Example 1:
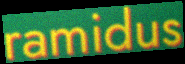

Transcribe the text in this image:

ramidus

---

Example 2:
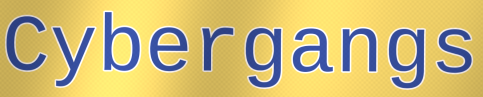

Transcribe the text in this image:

Cybergangs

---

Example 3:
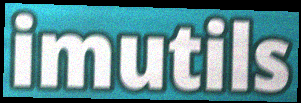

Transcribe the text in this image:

imutils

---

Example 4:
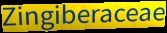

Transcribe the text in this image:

Zingiberaceae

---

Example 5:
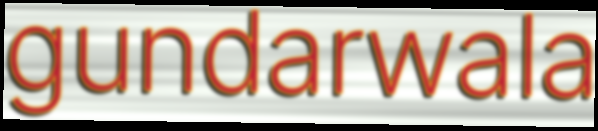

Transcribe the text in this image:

gundarwala